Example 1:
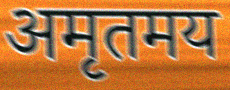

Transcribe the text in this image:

अमृतमय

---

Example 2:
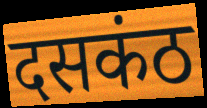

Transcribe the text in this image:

दसकंठ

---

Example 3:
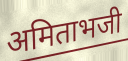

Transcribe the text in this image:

अमिताभजी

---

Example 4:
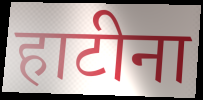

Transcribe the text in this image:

हाटीना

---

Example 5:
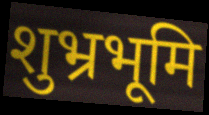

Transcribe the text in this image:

शुभ्रभूमि